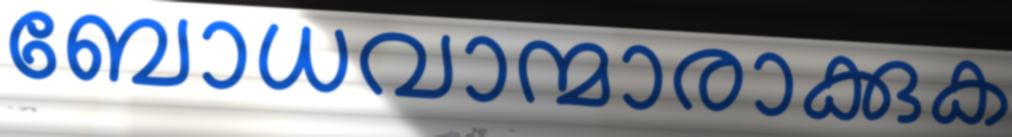
ബോധവാന്മാരാക്കുക